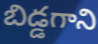
బిడ్డగాని